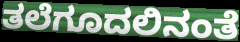
ತಲೆಗೂದಲಿನಂತೆ